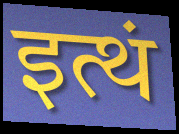
इत्थं